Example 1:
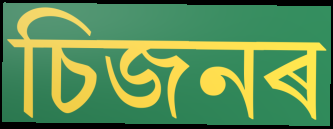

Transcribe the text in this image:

চিজনৰ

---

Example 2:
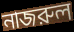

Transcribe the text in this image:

নাজৰুল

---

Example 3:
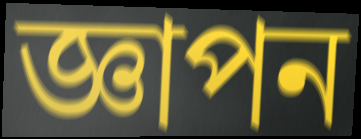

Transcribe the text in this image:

জ্ঞাপন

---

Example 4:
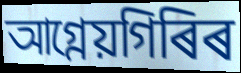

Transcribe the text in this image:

আগ্নেয়গিৰিৰ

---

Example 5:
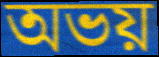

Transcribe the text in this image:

অভয়